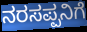
ನರಸಪ್ಪನಿಗೆ